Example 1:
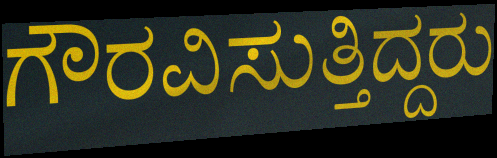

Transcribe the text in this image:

ಗೌರವಿಸುತ್ತಿದ್ದರು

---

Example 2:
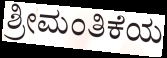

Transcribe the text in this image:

ಶ್ರೀಮಂತಿಕೆಯ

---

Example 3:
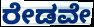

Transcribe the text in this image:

ರೇಡವೇ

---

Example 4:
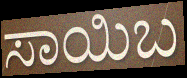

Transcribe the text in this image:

ಸಾಯಿಬ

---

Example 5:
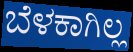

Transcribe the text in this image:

ಬೆಳಕಾಗಿಲ್ಲ